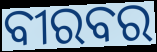
ବୀରବର